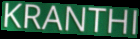
KRANTHI